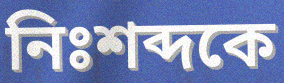
নিঃশব্দকে